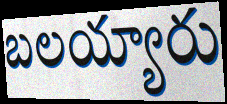
బలయ్యారు